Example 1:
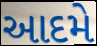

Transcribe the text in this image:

આદમે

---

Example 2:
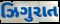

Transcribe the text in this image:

ઝિગુરાત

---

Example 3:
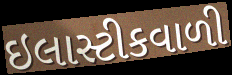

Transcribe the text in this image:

ઇલાસ્ટીકવાળી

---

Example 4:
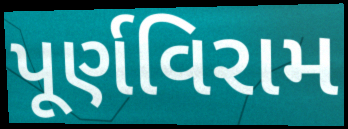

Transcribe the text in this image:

પૂર્ણવિરામ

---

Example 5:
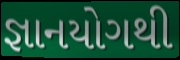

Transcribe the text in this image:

જ્ઞાનયોગથી